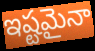
ఇష్టమైనా